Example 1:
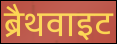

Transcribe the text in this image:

ब्रैथवाइट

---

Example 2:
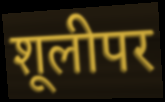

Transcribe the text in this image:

शूलीपर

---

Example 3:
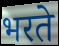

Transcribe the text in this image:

भरते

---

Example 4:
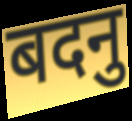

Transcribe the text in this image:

बदनु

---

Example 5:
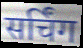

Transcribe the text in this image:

सर्चिंग